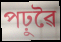
পঢ়ুৱৈ